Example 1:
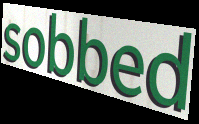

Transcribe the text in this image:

sobbed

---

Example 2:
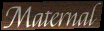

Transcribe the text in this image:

Maternal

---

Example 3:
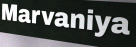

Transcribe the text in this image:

Marvaniya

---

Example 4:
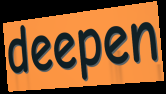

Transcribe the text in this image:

deepen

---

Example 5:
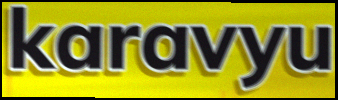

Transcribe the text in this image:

karavyu